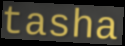
tasha